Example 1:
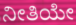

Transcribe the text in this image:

ನೀತಿಯೇ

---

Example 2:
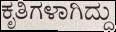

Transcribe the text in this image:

ಕೃತಿಗಳಾಗಿದ್ದು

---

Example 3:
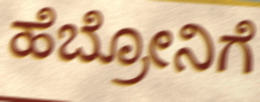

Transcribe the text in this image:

ಹೆಬ್ರೋನಿಗೆ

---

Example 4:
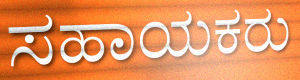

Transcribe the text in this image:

ಸಹಾಯಕರು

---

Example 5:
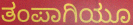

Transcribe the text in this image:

ತಂಪಾಗಿಯೂ